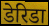
डेरिडा